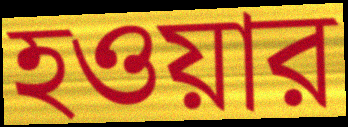
হওয়ার